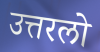
उत्तरलो